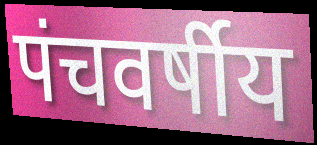
पंचवर्षीय